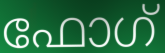
ഫോഗ്